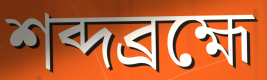
শব্দব্রহ্মে